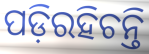
ପଡ଼ିରହିଚନ୍ତି